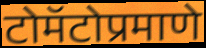
टोमॅटोप्रमाणे